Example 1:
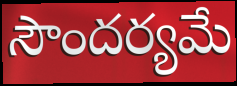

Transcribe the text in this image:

సౌందర్యమే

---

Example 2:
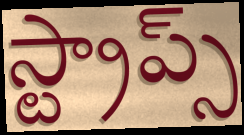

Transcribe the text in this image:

స్ట్రాప్స్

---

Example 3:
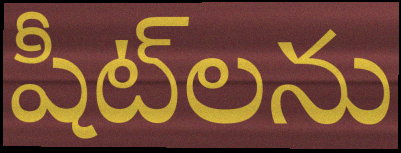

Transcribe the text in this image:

షీట్‌లను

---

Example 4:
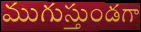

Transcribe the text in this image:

ముగుస్తుండగా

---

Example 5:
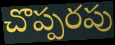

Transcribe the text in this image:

చొప్పరపు